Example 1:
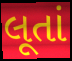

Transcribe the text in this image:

લૂતાં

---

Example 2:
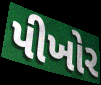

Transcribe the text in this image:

પીખોર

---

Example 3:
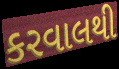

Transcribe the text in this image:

કરવાલથી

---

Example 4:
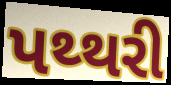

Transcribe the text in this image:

પથ્થરી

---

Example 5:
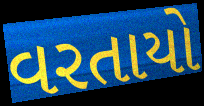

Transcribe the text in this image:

વરતાયો